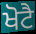
ਖੋਟੈ